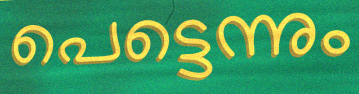
പെട്ടെന്നും